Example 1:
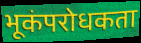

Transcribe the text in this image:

भूकंपरोधकता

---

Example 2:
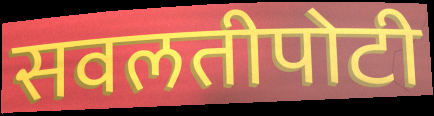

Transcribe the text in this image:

सवलतीपोटी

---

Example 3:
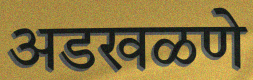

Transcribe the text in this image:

अडखळणे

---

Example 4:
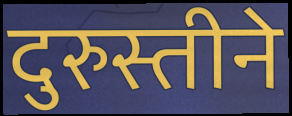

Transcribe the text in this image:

दुरुस्तीने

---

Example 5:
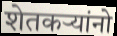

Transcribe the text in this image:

शेतकऱ्यांनो